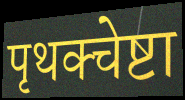
पृथक्चेष्टा